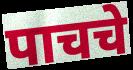
पाचचे